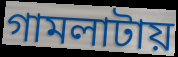
গামলাটায়